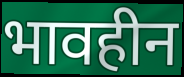
भावहीन